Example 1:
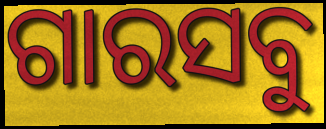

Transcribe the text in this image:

ଗାରସବୁ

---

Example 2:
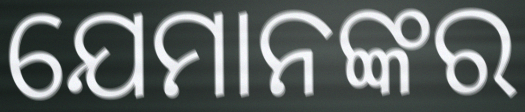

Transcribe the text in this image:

ଯେମାନଙ୍କର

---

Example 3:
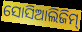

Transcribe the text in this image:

ସୋସିଆଲିଜିମ୍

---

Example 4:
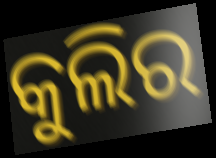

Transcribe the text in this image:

କୁଲିର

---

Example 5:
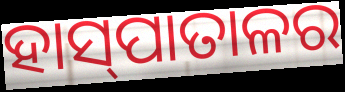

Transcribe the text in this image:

ହାସ୍‍ପାତାଳର